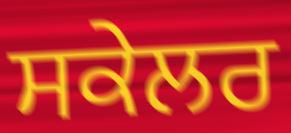
ਸਕੇਲਰ